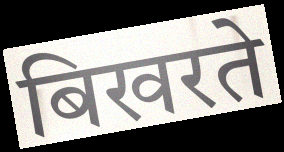
बिखरते